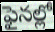
ఫైనల్లో